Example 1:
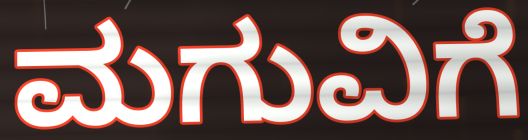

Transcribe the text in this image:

ಮಗುವಿಗೆ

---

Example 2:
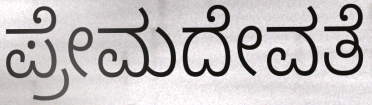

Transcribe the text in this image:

ಪ್ರೇಮದೇವತೆ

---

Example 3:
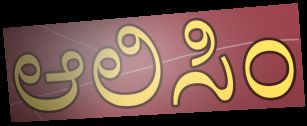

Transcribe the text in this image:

ಆಲಿಸಿಂ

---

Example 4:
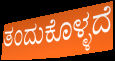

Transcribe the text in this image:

ತಂದುಕೊಳ್ಳದೆ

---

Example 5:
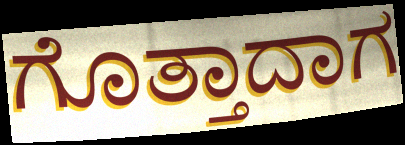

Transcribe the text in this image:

ಗೊತ್ತಾದಾಗ